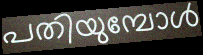
പതിയുമ്പോൾ